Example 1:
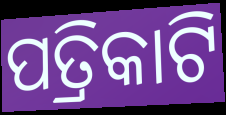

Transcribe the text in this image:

ପତ୍ରିକାଟି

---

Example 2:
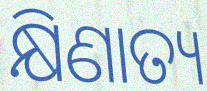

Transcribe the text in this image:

କ୍ଷିଣାତ୍ୟ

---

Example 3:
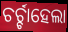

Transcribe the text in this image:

ଚର୍ଚ୍ଚାହେଲା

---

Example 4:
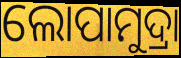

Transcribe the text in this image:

ଲୋପାମୁଦ୍ରା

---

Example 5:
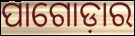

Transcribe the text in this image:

ପାଗୋଡ଼ାର